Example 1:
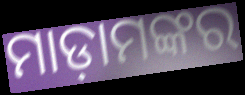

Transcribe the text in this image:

ମାଡ଼ାମଙ୍କର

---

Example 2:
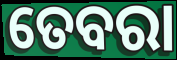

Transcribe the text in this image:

ତେବରା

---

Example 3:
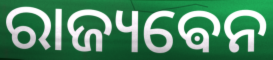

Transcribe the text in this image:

ରାଜ୍ୟଵେନ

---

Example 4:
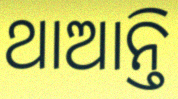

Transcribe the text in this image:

ଥାଆନ୍ତି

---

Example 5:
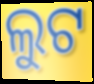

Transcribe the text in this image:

ଲୁଟ